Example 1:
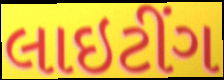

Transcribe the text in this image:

લાઇટીંગ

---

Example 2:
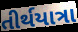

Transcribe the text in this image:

તીર્થયાત્રા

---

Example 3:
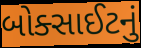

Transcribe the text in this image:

બોક્સાઈટનું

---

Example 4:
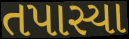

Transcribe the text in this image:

તપાસ્યા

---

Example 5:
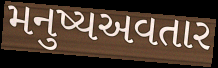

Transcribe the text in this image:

મનુષ્યઅવતાર